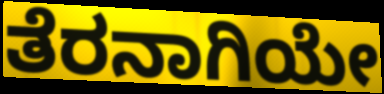
ತೆರನಾಗಿಯೇ